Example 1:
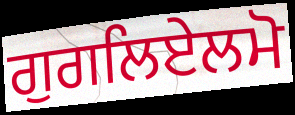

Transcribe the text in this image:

ਗੁਗਲਿਏਲਮੋ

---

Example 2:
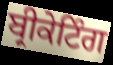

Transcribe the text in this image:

ਬ੍ਰੀਕੇਟਿੰਗ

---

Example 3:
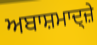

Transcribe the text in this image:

ਅਬਾਸ਼ਮਾਦ੍ਜ਼ੇ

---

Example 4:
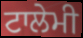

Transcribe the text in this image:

ਟਾਲੇਮੀ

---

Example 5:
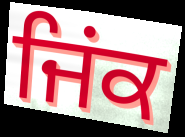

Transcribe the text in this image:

ਜਿਂਕ